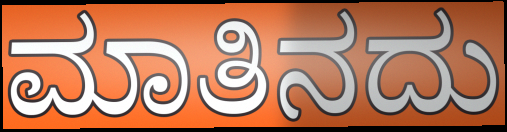
ಮಾತಿನದು